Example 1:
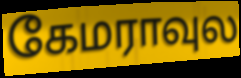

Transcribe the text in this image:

கேமராவுல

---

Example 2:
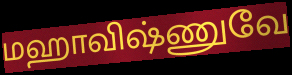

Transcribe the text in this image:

மஹாவிஷ்ணுவே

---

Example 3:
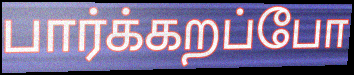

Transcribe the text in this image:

பார்க்கறப்போ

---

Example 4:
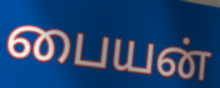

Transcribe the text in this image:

பையன்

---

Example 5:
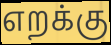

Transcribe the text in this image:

எறக்கு